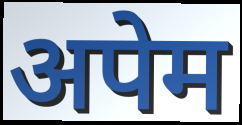
अपेम